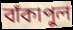
বাঁকাপুল